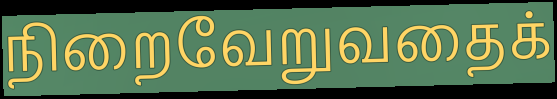
நிறைவேறுவதைக்